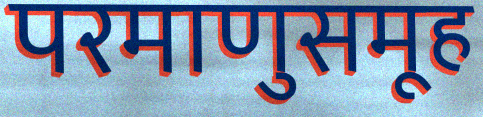
परमाणुसमूह